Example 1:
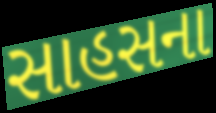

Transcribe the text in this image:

સાહસના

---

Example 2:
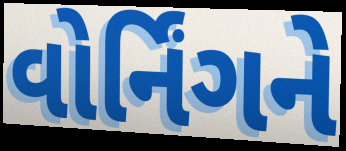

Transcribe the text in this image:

વોર્નિંગને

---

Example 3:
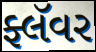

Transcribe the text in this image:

ફ્લૅવર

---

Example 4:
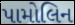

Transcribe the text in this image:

પામોલિન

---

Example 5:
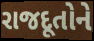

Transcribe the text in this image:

રાજદૂતોને